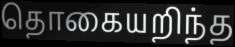
தொகையறிந்த